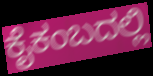
ಕೈಕಂಬದಲ್ಲಿ